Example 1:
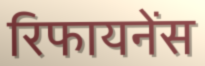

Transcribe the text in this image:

रिफायनेंस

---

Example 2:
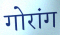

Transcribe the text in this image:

गोरांग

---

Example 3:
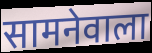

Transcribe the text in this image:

सामनेवाला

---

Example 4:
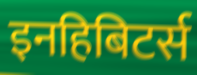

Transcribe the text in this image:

इनहिबिटर्स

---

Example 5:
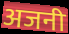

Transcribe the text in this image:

अजनी